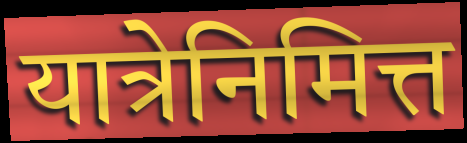
यात्रेनिमित्त